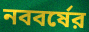
নববর্ষের